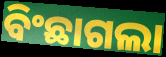
ବିଂଛାଗଲା